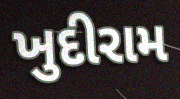
ખુદીરામ